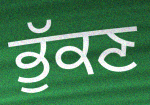
ਭੁੱਕਣ